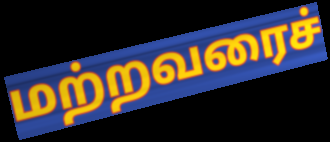
மற்றவரைச்